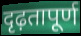
दृढ़तापूर्ण